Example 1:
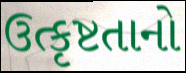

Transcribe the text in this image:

ઉત્કૃષ્ટતાનો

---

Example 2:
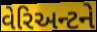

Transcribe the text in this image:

વેરિઅન્ટને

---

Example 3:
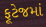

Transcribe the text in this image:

ફૂટેજમાં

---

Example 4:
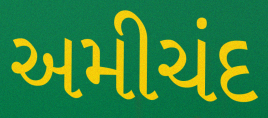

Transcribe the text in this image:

અમીચંદ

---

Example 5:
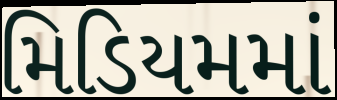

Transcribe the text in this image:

મિડિયમમાં